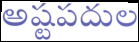
అష్టపదుల